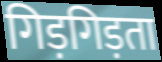
गिड़गिड़ता